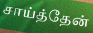
சாய்த்தேன்